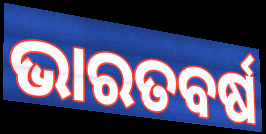
ଭାରତବର୍ଷ